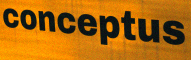
conceptus